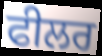
ਫੀਲਰ